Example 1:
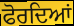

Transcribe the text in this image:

ਫੋਰਦਿਆਂ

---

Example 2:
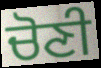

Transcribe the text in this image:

ਚੋਣੀ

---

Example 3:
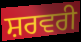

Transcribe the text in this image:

ਸ਼ਰਵਰੀ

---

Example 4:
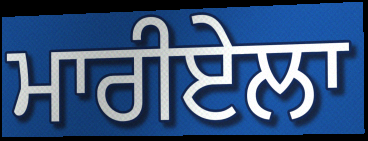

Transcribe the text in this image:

ਮਾਰੀਏਲਾ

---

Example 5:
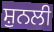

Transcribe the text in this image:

ਸ਼ੁਨਲੀ